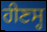
ਹੀਣਸ੍ਹ